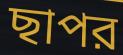
ছাপর